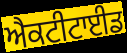
ਐਕਟੀਟਾਈਡ